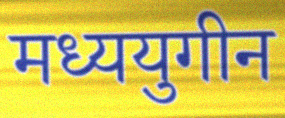
मध्ययुगीन